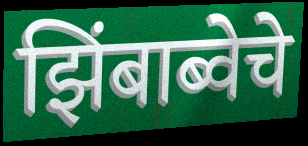
झिंबाब्वेचे